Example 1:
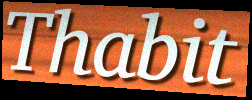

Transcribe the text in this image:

Thabit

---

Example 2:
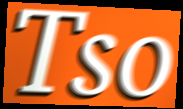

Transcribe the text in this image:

Tso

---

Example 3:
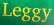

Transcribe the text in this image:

Leggy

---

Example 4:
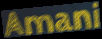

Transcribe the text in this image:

Amani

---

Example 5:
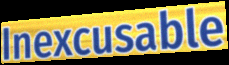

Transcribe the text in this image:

Inexcusable